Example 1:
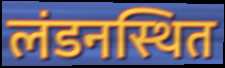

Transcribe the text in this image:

लंडनस्थित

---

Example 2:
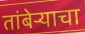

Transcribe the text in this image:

तांबेऱ्याचा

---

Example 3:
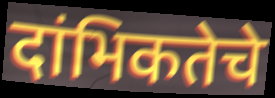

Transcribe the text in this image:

दांभिकतेचे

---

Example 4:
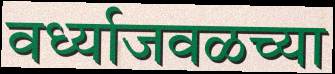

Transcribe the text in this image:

वर्ध्याजवळच्या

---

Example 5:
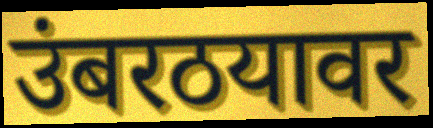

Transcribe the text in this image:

उंबरठयावर